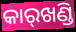
କାର୍‌ଖଣ୍ଡି